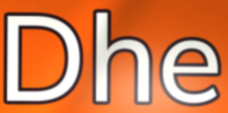
Dhe